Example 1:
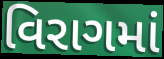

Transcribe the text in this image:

વિરાગમાં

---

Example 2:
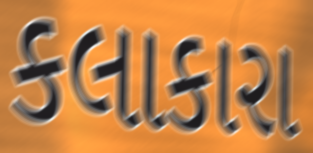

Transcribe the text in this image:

કલાકારા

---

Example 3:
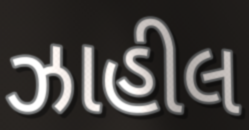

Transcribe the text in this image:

ઝાહીલ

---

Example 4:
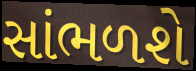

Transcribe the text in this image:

સાંભળશે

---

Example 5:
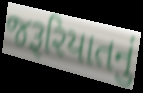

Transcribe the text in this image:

જરૂરિયાતનું